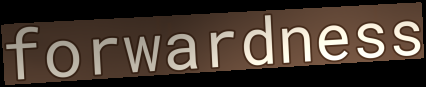
forwardness